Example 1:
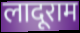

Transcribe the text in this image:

लादूराम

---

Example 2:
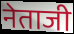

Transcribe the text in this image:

नेताजी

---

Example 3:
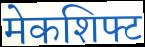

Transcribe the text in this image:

मेकशिफ्ट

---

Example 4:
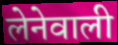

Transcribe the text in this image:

लेनेवाली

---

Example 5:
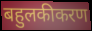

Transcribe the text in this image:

बहुलकीकरण